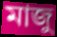
মাজু